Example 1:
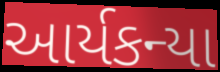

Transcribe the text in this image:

આર્યકન્યા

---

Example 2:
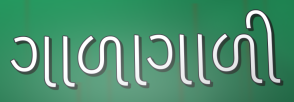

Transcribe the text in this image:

ગાળાગાળી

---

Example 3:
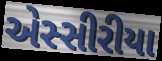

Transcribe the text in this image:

એસ્સીરીયા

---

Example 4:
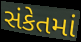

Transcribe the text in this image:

સંકેતમાં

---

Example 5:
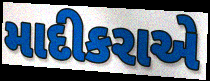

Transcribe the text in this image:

માદીકરાએ